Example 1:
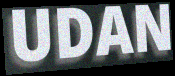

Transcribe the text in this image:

UDAN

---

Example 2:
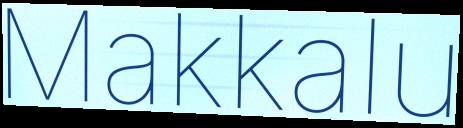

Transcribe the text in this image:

Makkalu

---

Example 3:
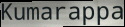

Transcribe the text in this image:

Kumarappa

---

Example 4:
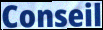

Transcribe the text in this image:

Conseil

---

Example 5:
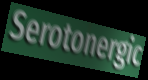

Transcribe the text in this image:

Serotonergic